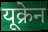
यूक्रेन